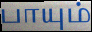
பாயும்